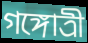
গঙ্গোত্রী